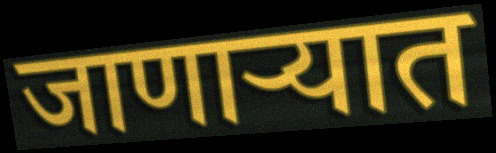
जाणाऱ्यात